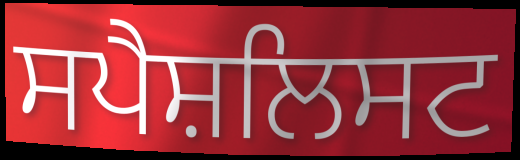
ਸਪੈਸ਼ਲਿਸਟ